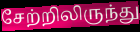
சேற்றிலிருந்து